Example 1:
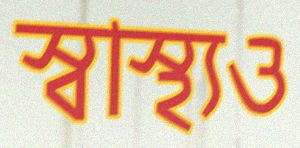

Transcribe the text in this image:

স্বাস্থ্যও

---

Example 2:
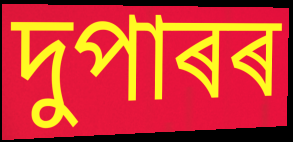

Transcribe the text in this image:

দুপাৰৰ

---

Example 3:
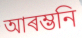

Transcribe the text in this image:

আৰম্ভনি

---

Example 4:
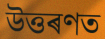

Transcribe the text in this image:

উত্তৰণত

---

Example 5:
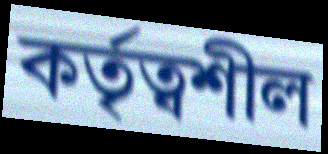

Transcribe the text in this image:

কৰ্তৃত্বশীল